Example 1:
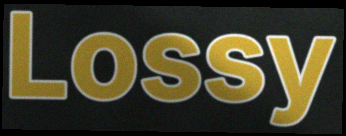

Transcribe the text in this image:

Lossy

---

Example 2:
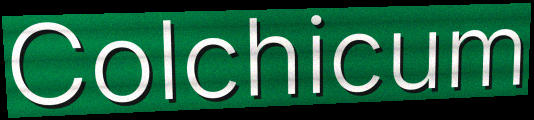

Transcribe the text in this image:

Colchicum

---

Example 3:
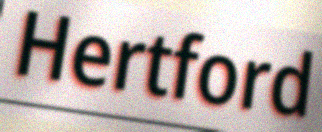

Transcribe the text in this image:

Hertford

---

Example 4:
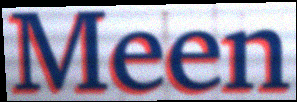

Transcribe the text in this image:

Meen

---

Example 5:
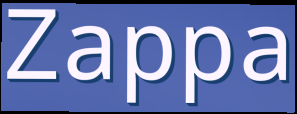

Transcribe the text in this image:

Zappa